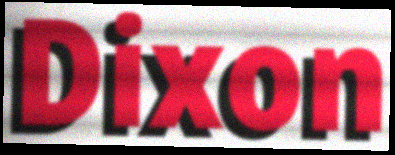
Dixon